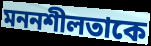
মননশীলতাকে